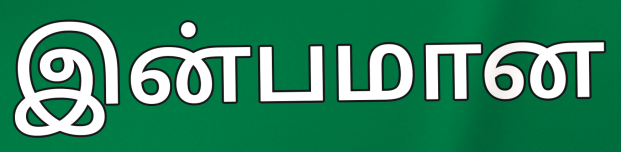
இன்பமான